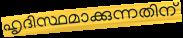
ഹൃദിസ്ഥമാക്കുന്നതിന്